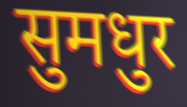
सुमधुर